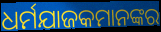
ଧର୍ମଯାଜକମାନଙ୍କର